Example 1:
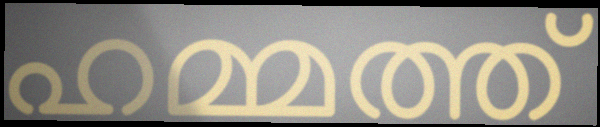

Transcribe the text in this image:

ഹമ്മത്ത്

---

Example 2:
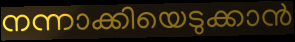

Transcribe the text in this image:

നന്നാക്കിയെടുക്കാൻ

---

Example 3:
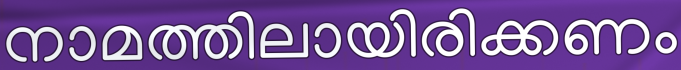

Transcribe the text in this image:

നാമത്തിലായിരിക്കണം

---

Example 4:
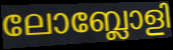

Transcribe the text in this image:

ലോബ്ലോളി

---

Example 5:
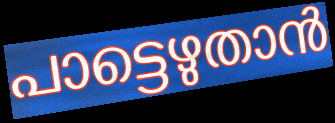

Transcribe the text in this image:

പാട്ടെഴുതാൻ